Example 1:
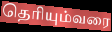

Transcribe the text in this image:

தெரியும்வரை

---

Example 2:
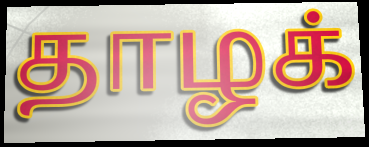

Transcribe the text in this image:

தாழக்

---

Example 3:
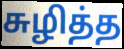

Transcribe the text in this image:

சுழித்த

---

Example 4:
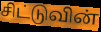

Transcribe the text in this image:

சிட்டுவின்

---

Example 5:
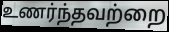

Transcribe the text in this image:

உணர்ந்தவற்றை